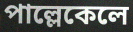
পাল্লেকেলে